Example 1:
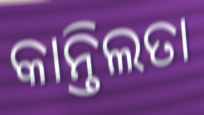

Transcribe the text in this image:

କାନ୍ତିଲତା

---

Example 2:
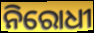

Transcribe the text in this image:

ନିରୋଧୀ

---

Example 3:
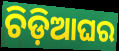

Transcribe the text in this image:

ଚିଡ଼ିଆଘର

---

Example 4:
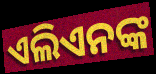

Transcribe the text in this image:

ଏଲିଏନଙ୍କ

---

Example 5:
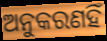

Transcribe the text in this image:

ଅନୁକରଣହିଁ